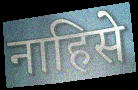
नाहिसे